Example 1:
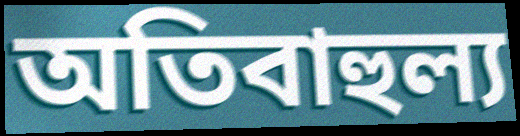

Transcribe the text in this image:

অতিবাহুল্য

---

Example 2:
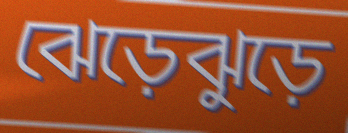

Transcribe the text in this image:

ঝেড়েঝুড়ে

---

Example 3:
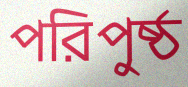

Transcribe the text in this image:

পরিপুষ্ঠ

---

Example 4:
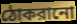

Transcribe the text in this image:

ঠোকরানো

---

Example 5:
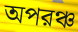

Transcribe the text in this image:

অপরঞ্চ